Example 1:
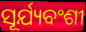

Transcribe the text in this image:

ସୂର୍ଯ୍ୟବଂଶୀ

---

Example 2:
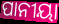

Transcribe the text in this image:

ପାନୀୟା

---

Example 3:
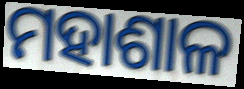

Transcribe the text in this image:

ମହାଶାଳ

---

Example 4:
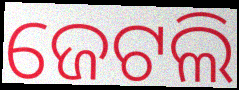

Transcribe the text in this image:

ଜେଟଲି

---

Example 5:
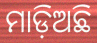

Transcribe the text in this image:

ମାଡ଼ିଅଛି